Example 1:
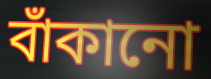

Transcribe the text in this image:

বাঁকানো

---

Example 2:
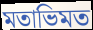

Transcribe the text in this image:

মতাভিমত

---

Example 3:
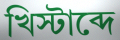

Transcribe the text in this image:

খিস্টাব্দে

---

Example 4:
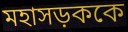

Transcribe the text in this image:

মহাসড়ককে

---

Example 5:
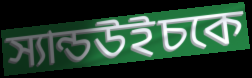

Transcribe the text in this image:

স্যান্ডউইচকে